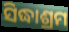
ସିଦ୍ଧାଶ୍ରମ